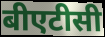
बीएटीसी